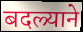
बदल्याने